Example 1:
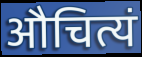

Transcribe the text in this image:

औचित्यं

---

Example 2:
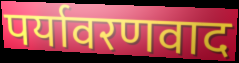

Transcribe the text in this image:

पर्यावरणवाद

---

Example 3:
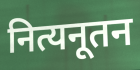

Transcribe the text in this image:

नित्यनूतन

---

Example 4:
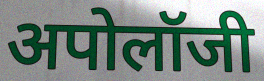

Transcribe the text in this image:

अपोलॉजी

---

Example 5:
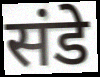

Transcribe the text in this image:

संडे